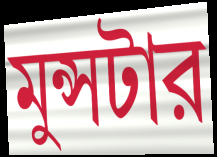
মুন্সটার